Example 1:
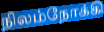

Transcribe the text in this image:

நிலம்நோக்கி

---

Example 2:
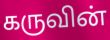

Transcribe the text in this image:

கருவின்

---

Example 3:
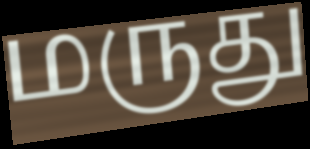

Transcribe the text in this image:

மருது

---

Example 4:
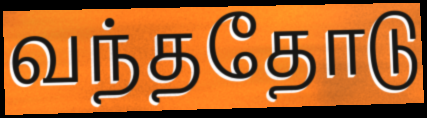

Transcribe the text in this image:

வந்ததோடு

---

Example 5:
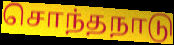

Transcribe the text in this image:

சொந்தநாடு